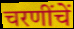
चरणींचें